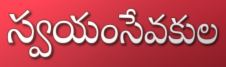
స్వయంసేవకుల